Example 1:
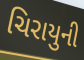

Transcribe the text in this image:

ચિરાયુની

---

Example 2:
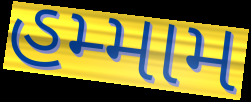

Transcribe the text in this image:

હમ્મામ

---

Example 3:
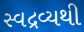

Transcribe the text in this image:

સ્વદ્રવ્યથી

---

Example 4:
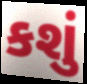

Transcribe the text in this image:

કશું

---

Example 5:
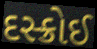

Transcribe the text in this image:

દસ્ક્રોઈ